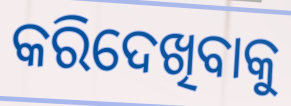
କରିଦେଖିବାକୁ